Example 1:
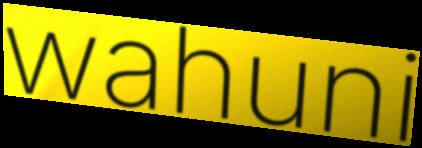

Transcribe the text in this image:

wahuni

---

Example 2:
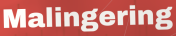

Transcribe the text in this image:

Malingering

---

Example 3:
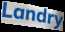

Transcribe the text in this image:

Landry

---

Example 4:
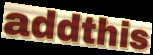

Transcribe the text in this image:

addthis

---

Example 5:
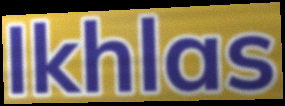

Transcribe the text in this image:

Ikhlas